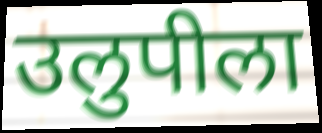
उलुपीला